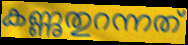
കണ്ണുതുറന്നത്